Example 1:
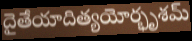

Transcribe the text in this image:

దైతేయాదిత్యయోర్భృశమ్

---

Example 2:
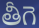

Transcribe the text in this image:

తీగె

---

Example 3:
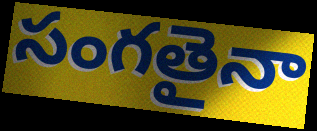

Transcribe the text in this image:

సంగతైనా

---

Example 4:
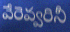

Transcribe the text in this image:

వేరెవ్వరినీ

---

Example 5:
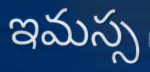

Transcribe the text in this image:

ఇమస్స